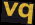
vq